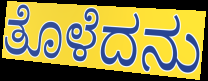
ತೊಳೆದನು